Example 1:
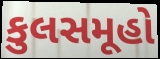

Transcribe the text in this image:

કુલસમૂહો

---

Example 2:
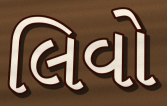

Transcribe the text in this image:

લિવો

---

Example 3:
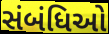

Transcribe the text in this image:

સંબંધિઓ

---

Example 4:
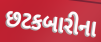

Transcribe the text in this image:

છટકબારીના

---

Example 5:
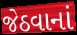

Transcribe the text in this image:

જેઠવાનાં